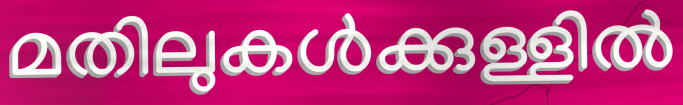
മതിലുകൾക്കുള്ളിൽ